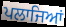
ਪਲਾਜਿਆਂ